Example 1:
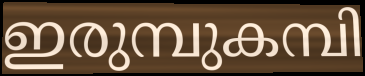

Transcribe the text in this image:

ഇരുമ്പുകമ്പി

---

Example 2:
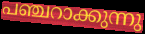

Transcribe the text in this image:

പഞ്ചറാക്കുന്നു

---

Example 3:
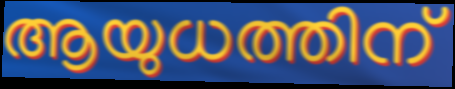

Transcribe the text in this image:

ആയുധത്തിന്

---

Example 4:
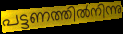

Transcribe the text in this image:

പട്ടണത്തിൽനിന്നു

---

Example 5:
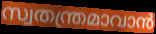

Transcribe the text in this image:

സ്വതന്ത്രമാവാൻ